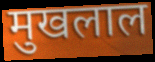
मुखलाल